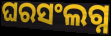
ଘରସଂଲଗ୍ନ